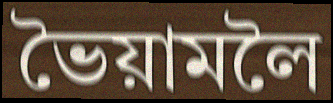
ভৈয়ামলৈ